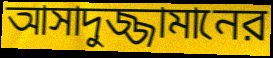
আসাদুজ্জামানের